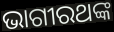
ଭାଗୀରଥଙ୍କ